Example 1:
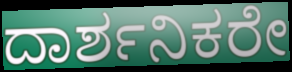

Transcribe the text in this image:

ದಾರ್ಶನಿಕರೇ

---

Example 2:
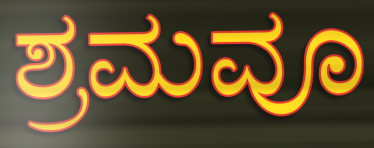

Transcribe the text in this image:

ಶ್ರಮವೂ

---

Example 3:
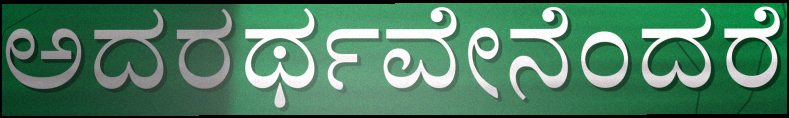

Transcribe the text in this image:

ಅದರರ್ಥವೇನೆಂದರೆ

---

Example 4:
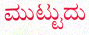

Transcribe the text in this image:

ಮುಟ್ಟುದು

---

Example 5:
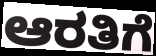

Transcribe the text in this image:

ಆರತಿಗೆ